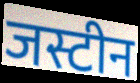
जस्टीन